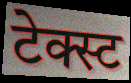
टेक्स्ट